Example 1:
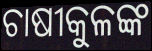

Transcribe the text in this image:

ଚାଷୀକୁଳଙ୍କ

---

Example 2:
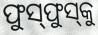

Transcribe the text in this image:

ଫୁସ୍‌ଫୁସ୍‌କୁ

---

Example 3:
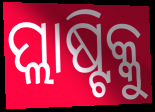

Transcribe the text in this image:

ପ୍ଲାଷ୍ଟିକ୍କୁ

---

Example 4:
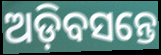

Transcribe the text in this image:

ଅଡ଼ିବସନ୍ତେ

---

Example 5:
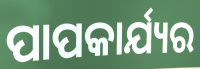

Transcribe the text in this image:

ପାପକାର୍ଯ୍ୟର